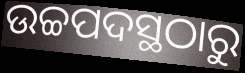
ଉଚ୍ଚପଦସ୍ଥଠାରୁ